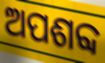
ଅପଶବ୍ଦ